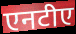
एनटीए